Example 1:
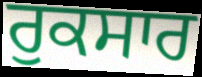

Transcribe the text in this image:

ਰੁਕਸਾਰ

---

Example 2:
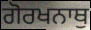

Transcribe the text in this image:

ਗੋਰਖਨਾਥੁ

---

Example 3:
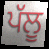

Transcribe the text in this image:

ਪੱਲੂ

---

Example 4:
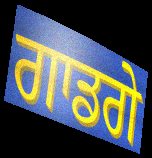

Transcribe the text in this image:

ਗਾਡਗੇ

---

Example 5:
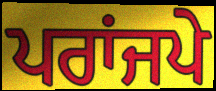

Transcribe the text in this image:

ਪਰਾਂਜਪੇ